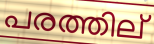
പരത്തില്